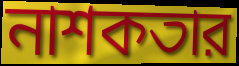
নাশকতার